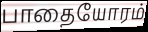
பாதையோரம்